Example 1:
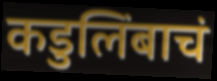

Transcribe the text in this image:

कडुलिंबाचं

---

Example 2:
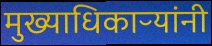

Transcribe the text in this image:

मुख्याधिकाऱ्यांनी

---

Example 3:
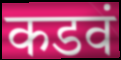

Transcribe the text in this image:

कडवं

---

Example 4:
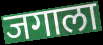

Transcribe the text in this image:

जगाला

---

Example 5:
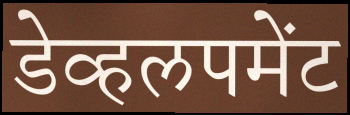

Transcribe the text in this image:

डेव्हलपमेंट